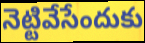
నెట్టివేసేందుకు